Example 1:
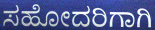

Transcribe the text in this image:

ಸಹೋದರಿಗಾಗಿ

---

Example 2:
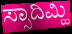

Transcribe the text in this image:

ಸ್ಸಾದಿಮ್ಹಿ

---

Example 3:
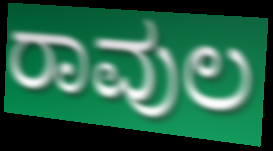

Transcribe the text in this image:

ರಾವುಲ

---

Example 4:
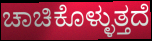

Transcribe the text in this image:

ಚಾಚಿಕೊಳ್ಳುತ್ತದೆ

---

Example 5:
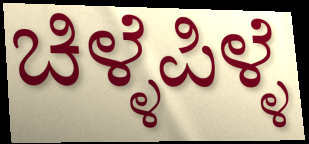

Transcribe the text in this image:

ಚಿಳ್ಳೆಪಿಳ್ಳೆ